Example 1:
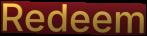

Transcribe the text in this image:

Redeem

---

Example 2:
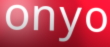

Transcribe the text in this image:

onyo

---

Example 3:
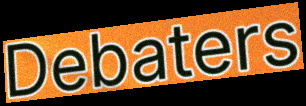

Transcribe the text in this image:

Debaters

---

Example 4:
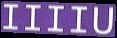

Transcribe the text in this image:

IIIIU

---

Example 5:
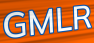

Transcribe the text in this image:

GMLR